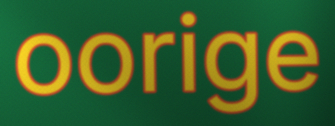
oorige